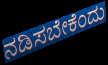
ನಡಿಸಬೇಕೆಂದು